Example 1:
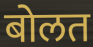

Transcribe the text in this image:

बोलत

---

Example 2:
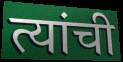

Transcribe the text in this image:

त्यांची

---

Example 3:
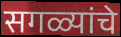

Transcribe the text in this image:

सगळ्यांचे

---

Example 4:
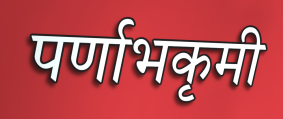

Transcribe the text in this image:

पर्णाभकृमी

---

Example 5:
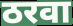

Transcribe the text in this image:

ठरवा